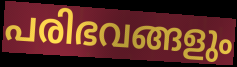
പരിഭവങ്ങളും